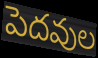
పెదవుల